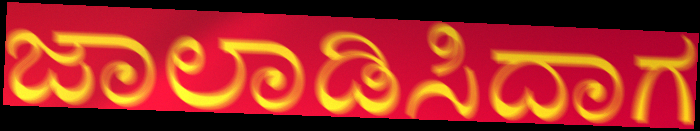
ಜಾಲಾಡಿಸಿದಾಗ